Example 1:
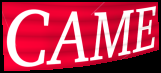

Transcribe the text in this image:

CAME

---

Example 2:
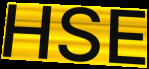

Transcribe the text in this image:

HSE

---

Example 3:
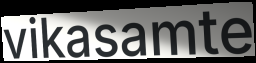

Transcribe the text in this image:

vikasamte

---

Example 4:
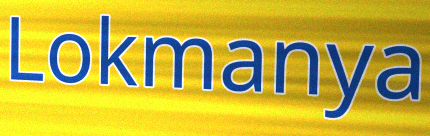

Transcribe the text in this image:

Lokmanya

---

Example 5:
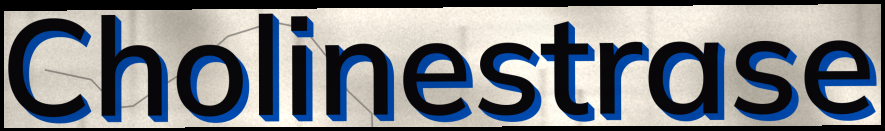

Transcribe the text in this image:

Cholinestrase